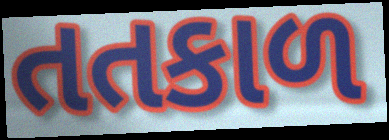
તતકાળ